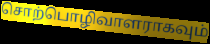
சொற்பொழிவாளராகவும்